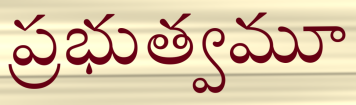
ప్రభుత్వమూ